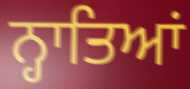
ਨ੍ਹਾਤਿਆਂ